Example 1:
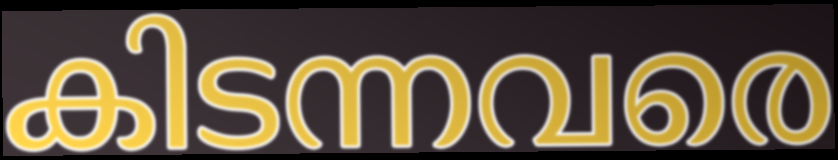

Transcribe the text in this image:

കിടന്നവരെ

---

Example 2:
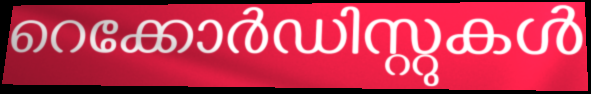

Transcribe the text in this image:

റെക്കോർഡിസ്റ്റുകൾ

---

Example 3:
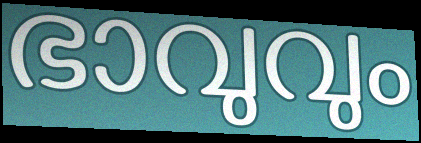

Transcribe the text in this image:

ഭാവുവും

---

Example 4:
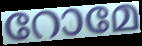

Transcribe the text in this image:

റോമേ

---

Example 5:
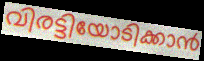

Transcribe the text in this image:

വിരട്ടിയോടിക്കാൻ